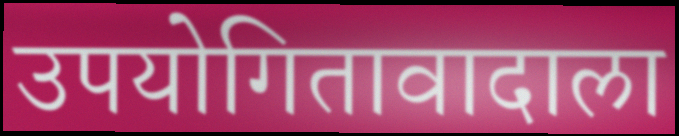
उपयोगितावादाला